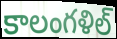
కాలంగళిల్